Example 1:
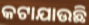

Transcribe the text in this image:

କଟାଯାଉଛି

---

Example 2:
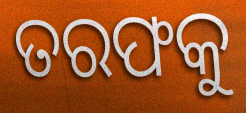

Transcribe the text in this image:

ତରଫକୁ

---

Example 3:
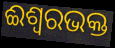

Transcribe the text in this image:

ଈଶ୍ୱରଭକ୍ତ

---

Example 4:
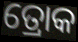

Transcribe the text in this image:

ତ୍ରୋକ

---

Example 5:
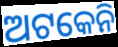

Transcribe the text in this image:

ଅଟକେନି